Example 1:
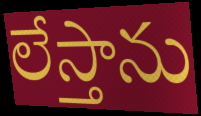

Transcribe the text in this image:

లేస్తాను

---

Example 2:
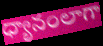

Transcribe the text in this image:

ధ్యానంలాగా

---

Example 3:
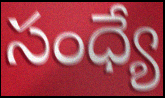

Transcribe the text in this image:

సంధ్యే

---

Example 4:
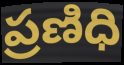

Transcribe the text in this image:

ప్రణిధి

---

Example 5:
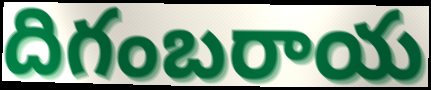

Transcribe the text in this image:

దిగంబరాయ